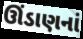
ઊંડાણનાં